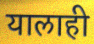
यालाही